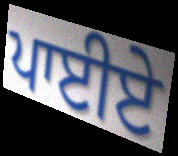
ਪਾਈਏ